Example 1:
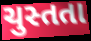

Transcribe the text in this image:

ચુસ્તતા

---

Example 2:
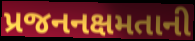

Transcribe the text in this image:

પ્રજનનક્ષમતાની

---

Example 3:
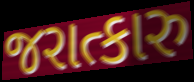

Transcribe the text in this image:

જરાત્કારુ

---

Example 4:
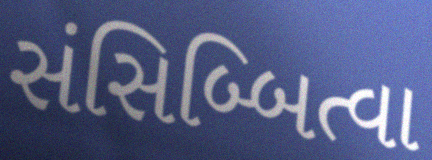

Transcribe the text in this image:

સંસિબ્બિત્વા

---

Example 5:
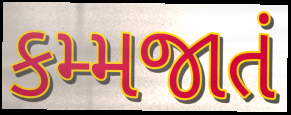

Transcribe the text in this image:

કમ્મજાતં